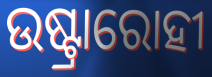
ଉଷ୍ଟ୍ରାରୋହୀ